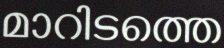
മാറിടത്തെ